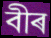
বীৰ